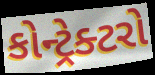
કોન્ટ્રેક્ટરો